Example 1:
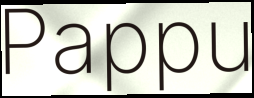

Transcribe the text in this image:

Pappu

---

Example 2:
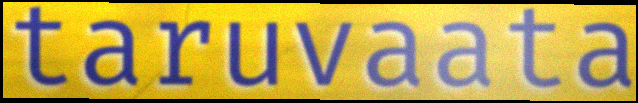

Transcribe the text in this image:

taruvaata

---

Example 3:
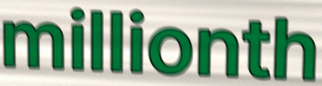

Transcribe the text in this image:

millionth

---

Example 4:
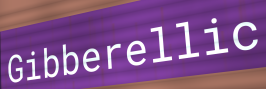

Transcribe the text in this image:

Gibberellic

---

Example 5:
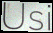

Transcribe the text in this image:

Usi